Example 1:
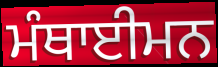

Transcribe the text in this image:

ਮੰਥਾਈਮਨ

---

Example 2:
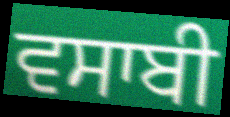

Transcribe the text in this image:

ਵਸਾਬੀ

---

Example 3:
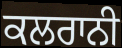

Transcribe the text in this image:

ਕਲਰਾਨੀ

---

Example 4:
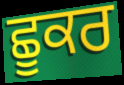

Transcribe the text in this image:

ਛੂਕਰ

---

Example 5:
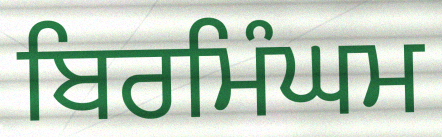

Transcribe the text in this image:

ਬਿਰਮਿੰਘਮ